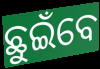
ଛୁଇଁବେ